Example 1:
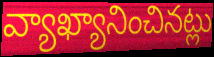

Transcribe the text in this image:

వ్యాఖ్యానించినట్లు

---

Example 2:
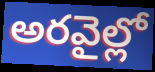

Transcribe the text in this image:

అరవైల్లో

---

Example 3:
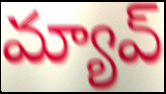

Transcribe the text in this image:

మ్యావ్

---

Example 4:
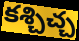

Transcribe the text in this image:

కశ్చిచ్చ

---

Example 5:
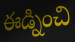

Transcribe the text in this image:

ఈడ్నించి